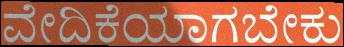
ವೇದಿಕೆಯಾಗಬೇಕು